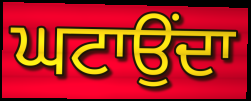
ਘਟਾਉਂਦਾ